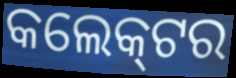
କଲେକ୍‌ଟର